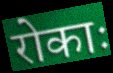
रोकाः